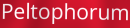
Peltophorum